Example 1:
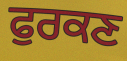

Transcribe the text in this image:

ਫੁਰਕਣ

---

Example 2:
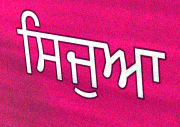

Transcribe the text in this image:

ਸਿਜੁਆ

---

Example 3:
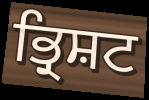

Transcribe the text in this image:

ਭ੍ਰਿਸ਼ਟ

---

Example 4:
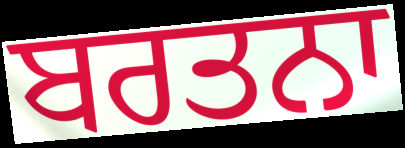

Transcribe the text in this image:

ਬਰਤਨਾ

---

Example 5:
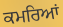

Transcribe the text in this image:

ਕਮਰਿਆਂ